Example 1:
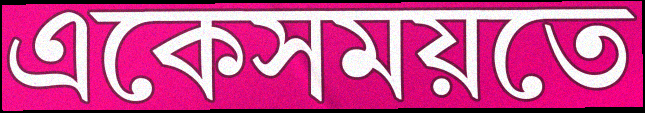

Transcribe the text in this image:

একেসময়তে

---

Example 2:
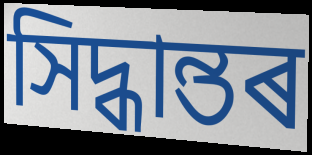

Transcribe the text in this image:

সিদ্ধান্তৰ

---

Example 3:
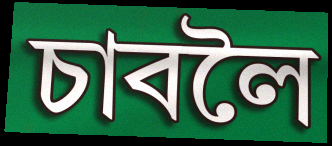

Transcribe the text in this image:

চাবলৈ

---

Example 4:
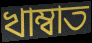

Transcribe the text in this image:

খাম্বাত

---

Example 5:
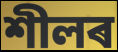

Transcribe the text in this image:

শীলৰ